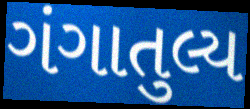
ગંગાતુલ્ય